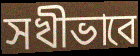
সখীভাবে